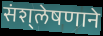
संश्लेषणाने